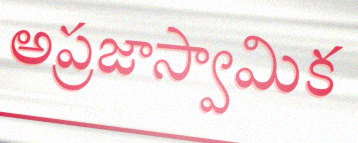
అప్రజాస్వామిక